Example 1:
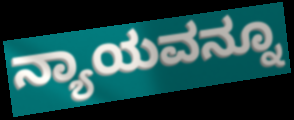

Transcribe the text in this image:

ನ್ಯಾಯವನ್ನೂ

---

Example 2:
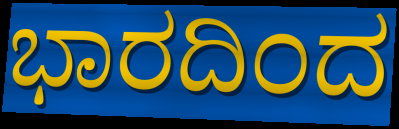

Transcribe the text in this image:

ಭಾರದಿಂದ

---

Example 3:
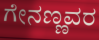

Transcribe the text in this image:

ಗೇನಣ್ಣವರ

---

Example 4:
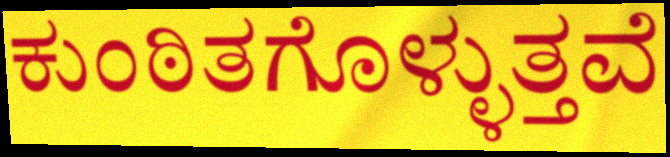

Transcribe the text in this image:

ಕುಂಠಿತಗೊಳ್ಳುತ್ತವೆ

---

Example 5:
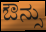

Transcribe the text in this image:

ಔನ್ಸು